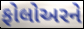
ફોલોઅરને